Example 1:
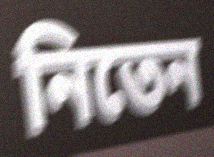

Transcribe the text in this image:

নিতেন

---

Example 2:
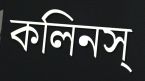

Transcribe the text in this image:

কলিনস্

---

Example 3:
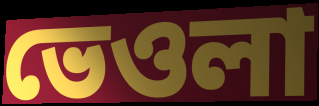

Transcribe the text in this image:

ভেওলা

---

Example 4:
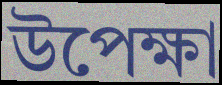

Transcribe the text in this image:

উপেক্ষা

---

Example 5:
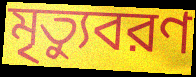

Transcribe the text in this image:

মৃত্যুবরণ